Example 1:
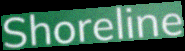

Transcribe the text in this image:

Shoreline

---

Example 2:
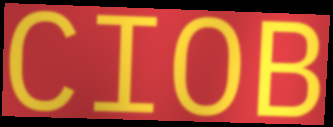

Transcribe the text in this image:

CIOB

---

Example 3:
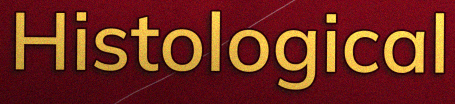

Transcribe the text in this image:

Histological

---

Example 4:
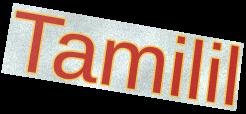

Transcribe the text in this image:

Tamilil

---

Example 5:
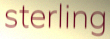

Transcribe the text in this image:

sterling